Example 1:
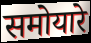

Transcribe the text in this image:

समोयारे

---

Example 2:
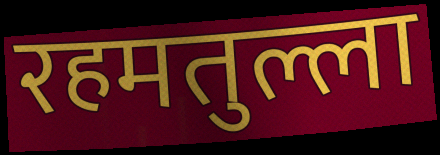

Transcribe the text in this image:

रहमतुल्ला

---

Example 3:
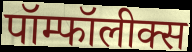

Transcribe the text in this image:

पॉम्फॉलीक्स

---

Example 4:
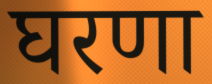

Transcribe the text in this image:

घरणा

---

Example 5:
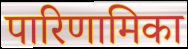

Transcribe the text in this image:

पारिणामिका